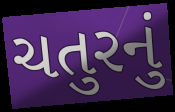
ચતુરનું